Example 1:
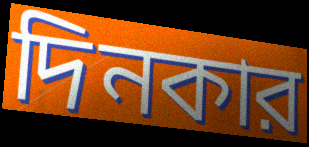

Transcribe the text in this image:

দিনকার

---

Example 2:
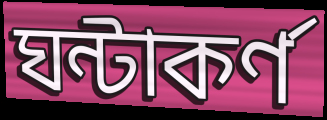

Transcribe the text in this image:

ঘন্টাকর্ণ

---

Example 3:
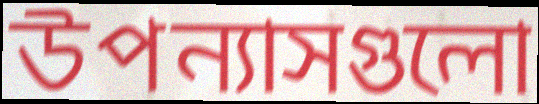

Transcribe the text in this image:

উপন্যাসগুলো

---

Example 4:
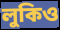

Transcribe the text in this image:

লুকিও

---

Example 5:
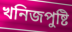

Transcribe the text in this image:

খনিজপুষ্টি